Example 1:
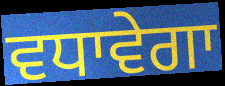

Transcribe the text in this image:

ਵਧਾਵੇਗਾ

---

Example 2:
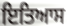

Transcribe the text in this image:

ਇਤਿਆਸ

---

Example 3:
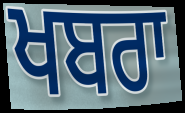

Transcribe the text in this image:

ਖਬਰਾ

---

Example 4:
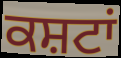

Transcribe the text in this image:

ਕਸ਼ਟਾਂ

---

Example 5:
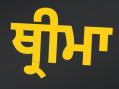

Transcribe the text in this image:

ਥ੍ਰੀਮਾ